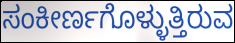
ಸಂಕೀರ್ಣಗೊಳ್ಳುತ್ತಿರುವ